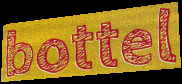
bottel